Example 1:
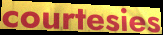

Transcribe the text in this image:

courtesies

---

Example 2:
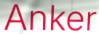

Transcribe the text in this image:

Anker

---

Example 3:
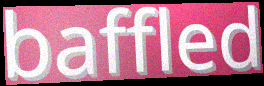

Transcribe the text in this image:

baffled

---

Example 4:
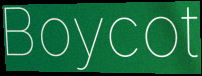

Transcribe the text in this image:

Boycot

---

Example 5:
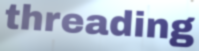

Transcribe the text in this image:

threading